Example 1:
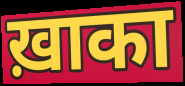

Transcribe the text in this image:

ख़ाका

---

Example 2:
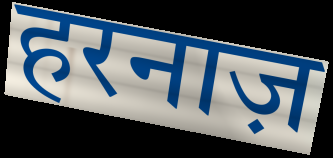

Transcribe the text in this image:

हरनाज़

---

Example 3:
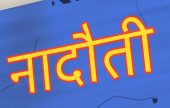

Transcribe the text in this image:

नादौती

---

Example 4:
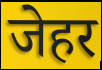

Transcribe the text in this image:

जेहर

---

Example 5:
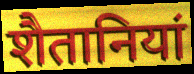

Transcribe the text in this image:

शैतानियां